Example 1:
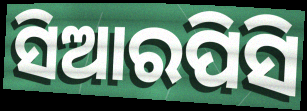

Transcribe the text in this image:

ସିଆରପିସି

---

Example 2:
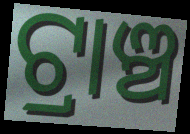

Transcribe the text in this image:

ଟ୍ରାଞ୍ଚ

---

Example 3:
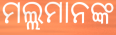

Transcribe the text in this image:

ମଲ୍ଲମାନଙ୍କ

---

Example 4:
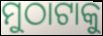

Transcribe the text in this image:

ମୁଠାଟାକୁ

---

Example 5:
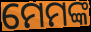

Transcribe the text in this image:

ମେମଙ୍କ